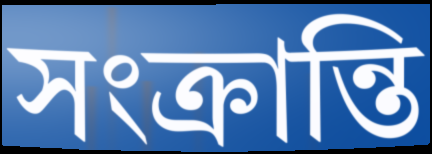
সংক্রান্তি